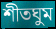
শীতঘুম